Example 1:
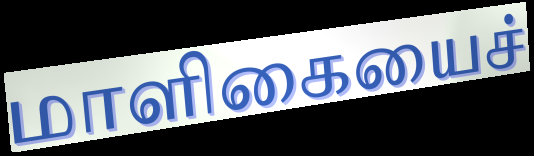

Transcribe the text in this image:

மாளிகையைச்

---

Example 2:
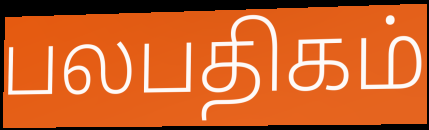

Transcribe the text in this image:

பலபதிகம்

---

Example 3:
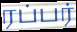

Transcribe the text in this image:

ரப்பர்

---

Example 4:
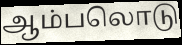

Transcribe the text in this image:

ஆம்பலொடு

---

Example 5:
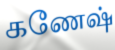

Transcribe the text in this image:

கணேஷ்